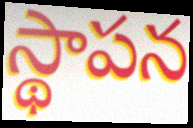
స్థాపన